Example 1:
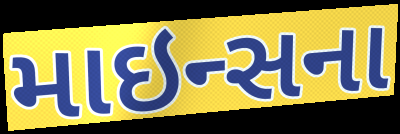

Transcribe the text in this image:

માઇન્સના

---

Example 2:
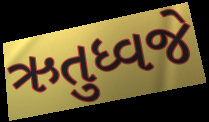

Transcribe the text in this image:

ઋતુધ્વજે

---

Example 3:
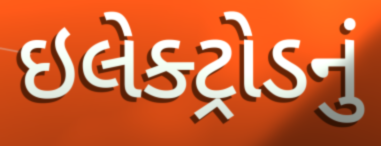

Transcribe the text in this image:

ઇલેક્ટ્રોડનું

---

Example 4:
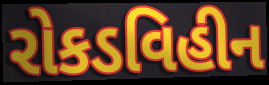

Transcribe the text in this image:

રોકડવિહીન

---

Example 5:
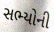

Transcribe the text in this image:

સભ્યોની